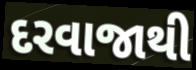
દરવાજાથી